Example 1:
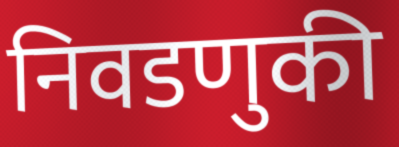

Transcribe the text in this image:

निवडणुकी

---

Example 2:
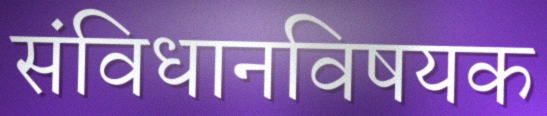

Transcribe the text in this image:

संविधानविषयक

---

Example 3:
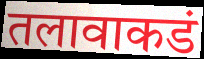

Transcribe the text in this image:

तलावाकडं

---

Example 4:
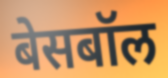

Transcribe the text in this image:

बेसबॉल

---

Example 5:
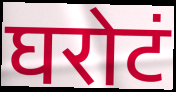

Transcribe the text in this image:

घरोटं